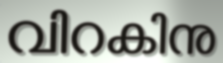
വിറകിനു